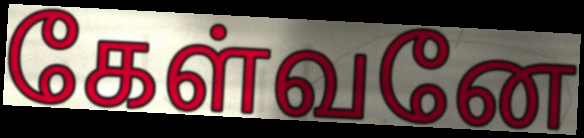
கேள்வனே